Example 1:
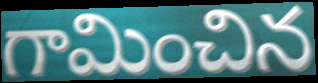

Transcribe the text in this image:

గామించిన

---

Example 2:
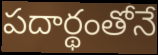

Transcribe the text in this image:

పదార్థంతోనే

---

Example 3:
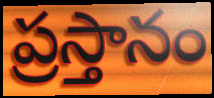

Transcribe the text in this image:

ప్రస్తానం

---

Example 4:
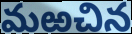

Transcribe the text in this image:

మఱచిన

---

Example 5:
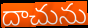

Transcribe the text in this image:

దాచును